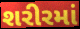
શરીરમાં